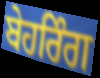
ਬੇਹਰਿੰਗ